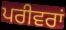
ਪਰੀਵਰਾਂ